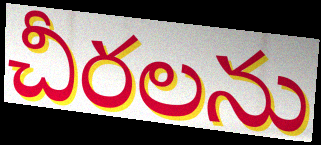
చీరలను